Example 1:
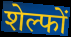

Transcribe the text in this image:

शेल्फों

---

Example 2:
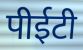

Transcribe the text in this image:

पीईटी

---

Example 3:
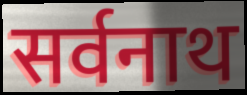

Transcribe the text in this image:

सर्वनाथ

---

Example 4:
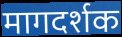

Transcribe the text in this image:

मागदर्शक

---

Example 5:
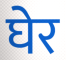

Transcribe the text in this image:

घेर